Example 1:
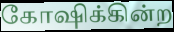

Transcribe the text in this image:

கோஷிக்கின்ற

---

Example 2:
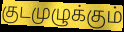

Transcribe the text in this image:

குடமுழுக்கும்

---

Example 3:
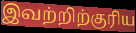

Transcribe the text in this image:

இவற்றிற்குரிய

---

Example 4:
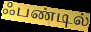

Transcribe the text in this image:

ஃபண்டில்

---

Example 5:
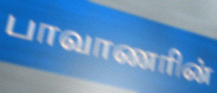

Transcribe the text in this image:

பாவாணரின்